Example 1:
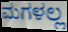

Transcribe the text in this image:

ಮಗಳಲ್ಲ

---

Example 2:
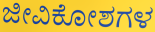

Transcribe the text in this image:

ಜೀವಿಕೋಶಗಳ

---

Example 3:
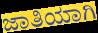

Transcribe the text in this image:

ಜಾತಿಯಾಗಿ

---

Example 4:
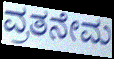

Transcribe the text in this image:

ವ್ರತನೇಮ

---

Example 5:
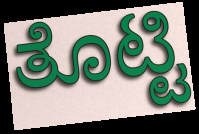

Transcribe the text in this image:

ತೊಟ್ಟಿ